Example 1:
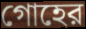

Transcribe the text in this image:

গোহের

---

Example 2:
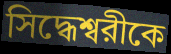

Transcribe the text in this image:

সিদ্ধেশ্বরীকে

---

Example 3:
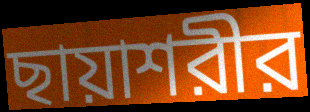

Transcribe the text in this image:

ছায়াশরীর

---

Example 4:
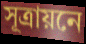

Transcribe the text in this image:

সূত্রায়নে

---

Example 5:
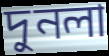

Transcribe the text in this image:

দুনলা